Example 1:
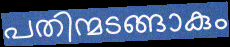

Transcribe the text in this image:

പതിന്മടങ്ങാകും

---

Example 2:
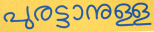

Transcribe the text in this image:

പുരട്ടാനുള്ള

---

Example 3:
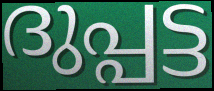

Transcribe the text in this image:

ദുപ്പട്ട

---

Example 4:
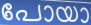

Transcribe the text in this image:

പോയാ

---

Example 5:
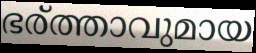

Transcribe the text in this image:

ഭര്ത്താവുമായ